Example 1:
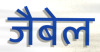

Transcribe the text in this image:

जैबेल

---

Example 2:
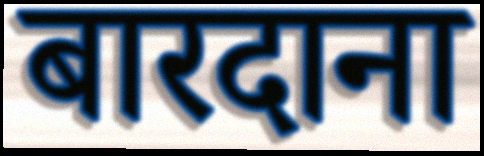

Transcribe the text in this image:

बारदाना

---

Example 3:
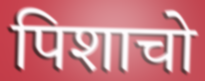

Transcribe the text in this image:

पिशाचो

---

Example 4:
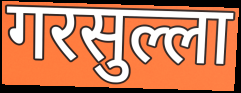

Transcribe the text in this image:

गरसुल्ला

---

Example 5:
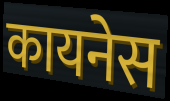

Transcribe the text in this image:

कायनेस